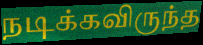
நடிக்கவிருந்த